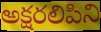
అక్షరలిపిని